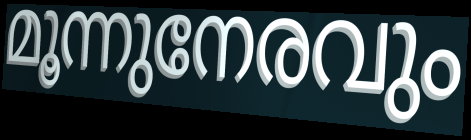
മൂന്നുനേരവും